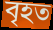
বৃহত